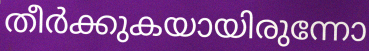
തീർക്കുകയായിരുന്നോ